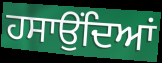
ਹਸਾਉਂਦਿਆਂ